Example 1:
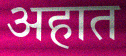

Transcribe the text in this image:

अहात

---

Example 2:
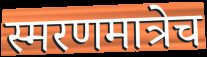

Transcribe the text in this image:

स्मरणमात्रेच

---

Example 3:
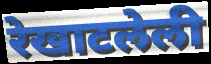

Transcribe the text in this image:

रेखाटलेली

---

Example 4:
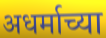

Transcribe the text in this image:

अधर्माच्या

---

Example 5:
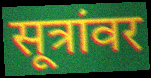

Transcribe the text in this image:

सूत्रांवर